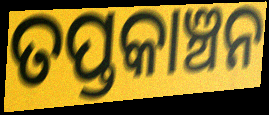
ତପ୍ତକାଞ୍ଚନ